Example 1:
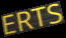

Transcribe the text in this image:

ERTS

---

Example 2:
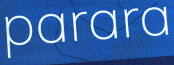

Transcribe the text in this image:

parara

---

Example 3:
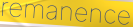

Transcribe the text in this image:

remanence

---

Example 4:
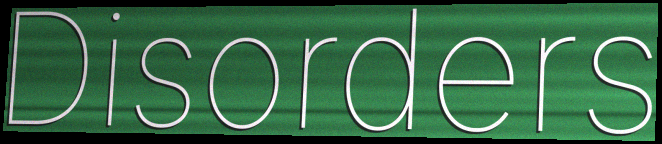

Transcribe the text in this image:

Disorders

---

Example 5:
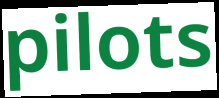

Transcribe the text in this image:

pilots